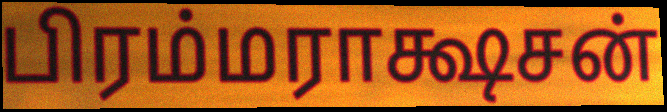
பிரம்மராக்ஷசன்